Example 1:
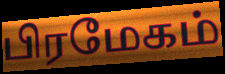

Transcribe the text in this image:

பிரமேகம்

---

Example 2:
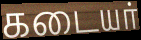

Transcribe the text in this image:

கடையர்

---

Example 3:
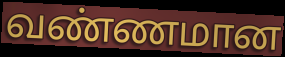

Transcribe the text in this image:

வண்ணமான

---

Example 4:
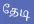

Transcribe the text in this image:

தேடி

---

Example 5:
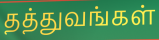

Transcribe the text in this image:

தத்துவங்கள்